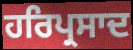
ਹਰਿਪ੍ਰਸਾਦ